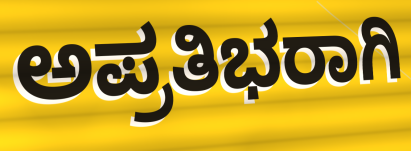
ಅಪ್ರತಿಭರಾಗಿ